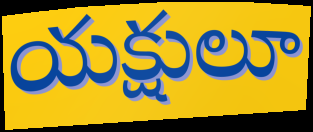
యక్షులూ